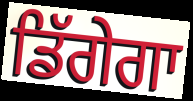
ਡਿੱਗੇਗਾ